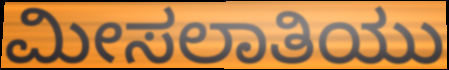
ಮೀಸಲಾತಿಯು